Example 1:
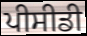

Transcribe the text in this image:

ਪੀਸੀਡੀ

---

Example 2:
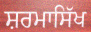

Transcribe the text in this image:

ਸ਼ਰਮਾਸਿੱਖ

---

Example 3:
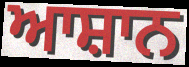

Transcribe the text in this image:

ਆਸ਼ਾਨ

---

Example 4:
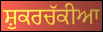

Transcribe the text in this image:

ਸ਼ੁਕਰਚੱਕੀਆ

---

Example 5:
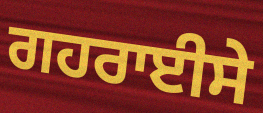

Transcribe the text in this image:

ਗਹਰਾਈਸੇ